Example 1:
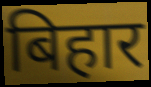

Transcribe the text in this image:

बिहार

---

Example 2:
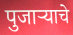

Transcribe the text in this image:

पुजाऱ्याचे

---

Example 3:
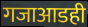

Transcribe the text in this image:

गजाआडही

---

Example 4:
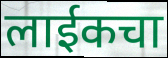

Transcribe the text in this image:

लाईकचा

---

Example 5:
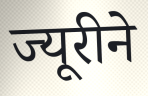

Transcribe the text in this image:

ज्यूरीने